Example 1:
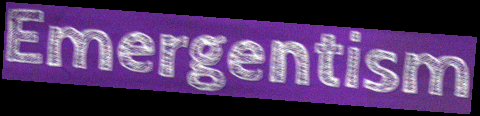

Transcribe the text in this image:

Emergentism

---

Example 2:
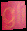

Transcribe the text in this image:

gli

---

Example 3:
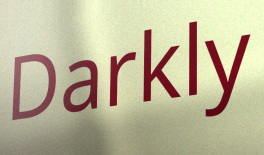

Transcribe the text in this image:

Darkly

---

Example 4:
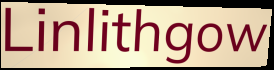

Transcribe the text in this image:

Linlithgow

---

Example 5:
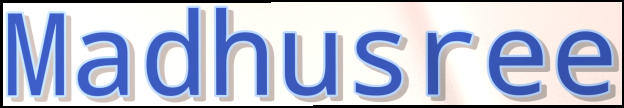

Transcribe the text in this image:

Madhusree